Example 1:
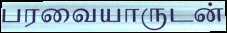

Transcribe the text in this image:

பரவையாருடன்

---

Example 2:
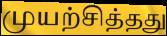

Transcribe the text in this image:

முயற்சித்தது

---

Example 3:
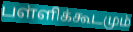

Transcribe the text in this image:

பள்ளிக்கூடமும்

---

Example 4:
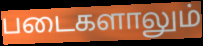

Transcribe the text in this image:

படைகளாலும்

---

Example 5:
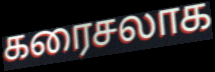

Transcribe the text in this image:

கரைசலாக